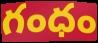
గంధం